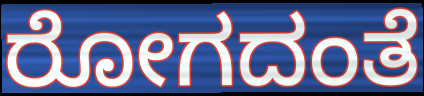
ರೋಗದಂತೆ